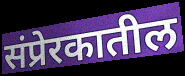
संप्रेरकातील